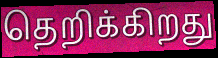
தெறிக்கிறது